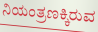
ನಿಯಂತ್ರಣಕ್ಕಿರುವ